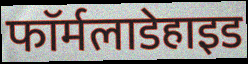
फॉर्मलाडेहाइड